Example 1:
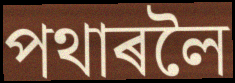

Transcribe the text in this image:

পথাৰলৈ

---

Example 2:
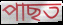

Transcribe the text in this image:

পাছত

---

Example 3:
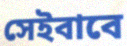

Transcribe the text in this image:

সেইবাবে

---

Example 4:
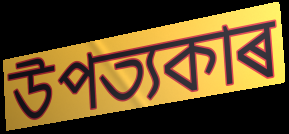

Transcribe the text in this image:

উপত্যকাৰ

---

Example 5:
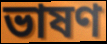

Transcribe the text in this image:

ভাষণ